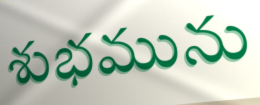
శుభమును